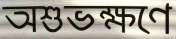
অশুভক্ষণে